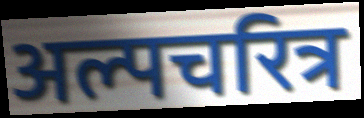
अल्पचरित्र